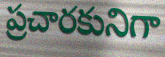
ప్రచారకునిగా